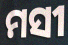
ମସୀ